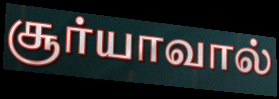
சூர்யாவால்